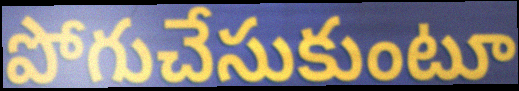
పోగుచేసుకుంటూ